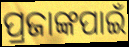
ପ୍ରଜାଙ୍କପାଇଁ